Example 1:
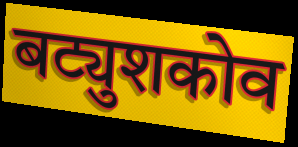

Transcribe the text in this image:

बट्युशकोव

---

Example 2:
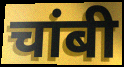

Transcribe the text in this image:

चांबी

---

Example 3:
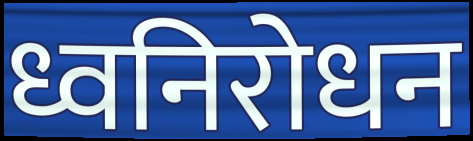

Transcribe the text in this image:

ध्वनिरोधन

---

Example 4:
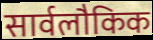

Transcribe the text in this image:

सार्वलौकिक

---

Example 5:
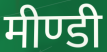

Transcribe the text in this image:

मीण्‍डी